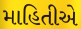
માહિતીએ